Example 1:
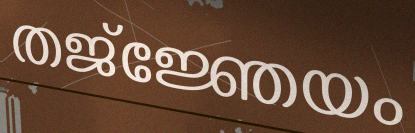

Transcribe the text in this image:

തജ്ജ്ഞേയം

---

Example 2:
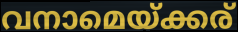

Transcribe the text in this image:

വനാമെയ്ക്കര്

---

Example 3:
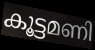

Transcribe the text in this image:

കൂട്ടമണി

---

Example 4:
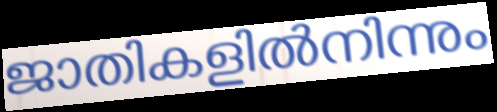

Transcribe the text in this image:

ജാതികളിൽനിന്നും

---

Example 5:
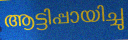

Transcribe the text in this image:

ആട്ടിപ്പായിച്ചു